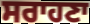
ਸਰਾਹਣਾ